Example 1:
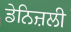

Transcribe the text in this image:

ਡੇਨਿਜ਼ਲੀ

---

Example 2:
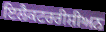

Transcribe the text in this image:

ਇਲੈਕਟਰਰੀਸ਼ੀਅਨ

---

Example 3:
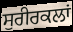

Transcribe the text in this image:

ਸੁਰੀਰਕਲਾਂ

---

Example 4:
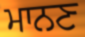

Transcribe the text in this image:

ਮਾਨਣ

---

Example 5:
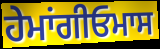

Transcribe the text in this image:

ਹੇਮਾਂਗੀਓਮਾਸ